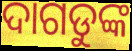
ଦାଗଡୁଙ୍କ